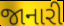
જાનારી